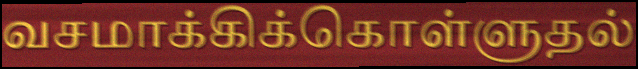
வசமாக்கிக்கொள்ளுதல்